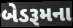
બેડરૂમના